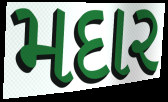
મદાર